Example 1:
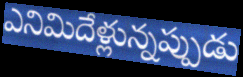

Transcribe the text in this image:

ఎనిమిదేళ్లున్నప్పుడు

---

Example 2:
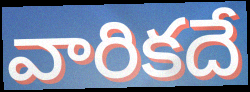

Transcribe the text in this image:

వారికదే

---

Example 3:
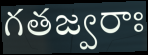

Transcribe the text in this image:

గతజ్వరాః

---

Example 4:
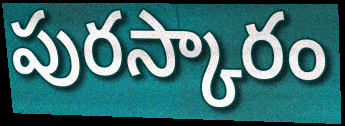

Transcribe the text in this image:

పురస్కారం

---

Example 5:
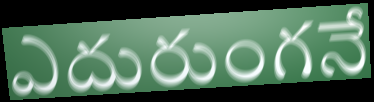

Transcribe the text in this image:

ఎదురుంగనే